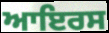
ਆਇਰਸ